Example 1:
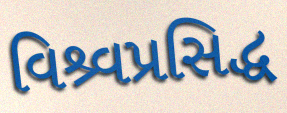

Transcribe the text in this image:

વિશ્ર્વપ્રસિદ્ધ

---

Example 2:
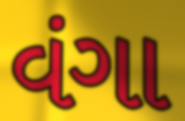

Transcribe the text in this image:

વંગા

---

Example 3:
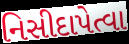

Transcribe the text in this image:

નિસીદાપેત્વા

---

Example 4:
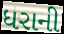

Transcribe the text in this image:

ધરાની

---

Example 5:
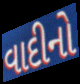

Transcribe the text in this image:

વાદીનો